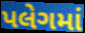
પલેગમાં